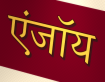
एंजॉय